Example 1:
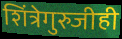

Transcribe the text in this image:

शिंत्रेगुरुजीही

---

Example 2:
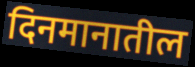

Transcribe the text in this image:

दिनमानातील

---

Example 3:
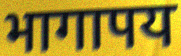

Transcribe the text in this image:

भागापय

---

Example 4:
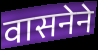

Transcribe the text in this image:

वासनेने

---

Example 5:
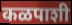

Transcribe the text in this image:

कळपाशी